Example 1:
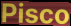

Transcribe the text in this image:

Pisco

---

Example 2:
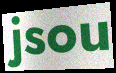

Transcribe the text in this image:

jsou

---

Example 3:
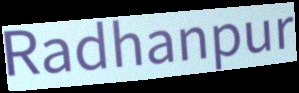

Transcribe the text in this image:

Radhanpur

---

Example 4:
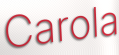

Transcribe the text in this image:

Carola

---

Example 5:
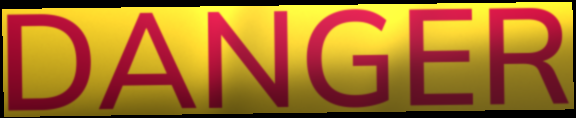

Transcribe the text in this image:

DANGER